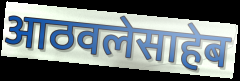
आठवलेसाहेब